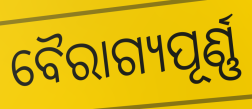
ବୈରାଗ୍ୟପୂର୍ଣ୍ଣ